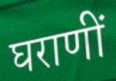
घराणीं